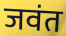
जवंत